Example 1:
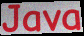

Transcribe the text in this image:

Java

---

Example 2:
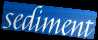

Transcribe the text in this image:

sediment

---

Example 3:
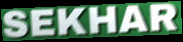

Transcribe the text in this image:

SEKHAR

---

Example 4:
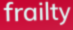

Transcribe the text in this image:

frailty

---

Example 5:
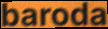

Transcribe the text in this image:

baroda